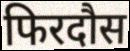
फिरदौस